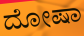
ದೋಷಾ